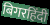
बिगरहिंदी